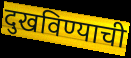
दुखविण्याची